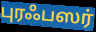
புரஃபஸர்